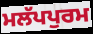
ਮਲੱਪਪੁਰਮ